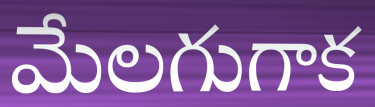
మేలగుగాక